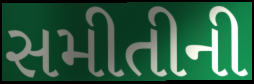
સમીતીની